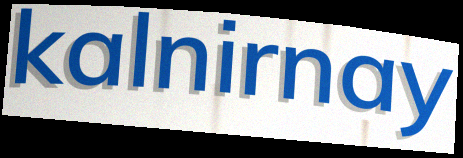
kalnirnay